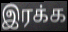
இரக்க